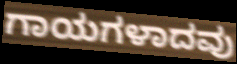
ಗಾಯಗಳಾದವು